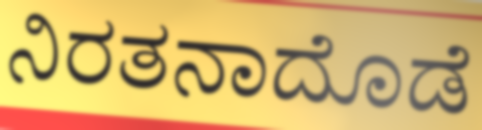
ನಿರತನಾದೊಡೆ